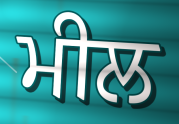
ਮੀਲ